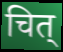
चित्